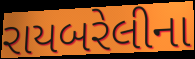
રાયબરેલીના